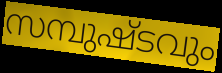
സമ്പുഷ്ടവും